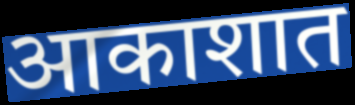
आकाशात